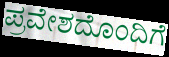
ಪ್ರವೇಶದೊಂದಿಗೆ